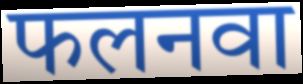
फलनवा